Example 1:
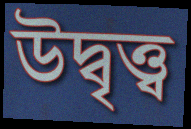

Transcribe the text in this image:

উদ্বৃত্ত্ব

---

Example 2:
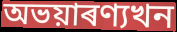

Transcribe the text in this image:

অভয়াৰণ্যখন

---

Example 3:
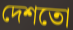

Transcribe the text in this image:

দেশতো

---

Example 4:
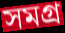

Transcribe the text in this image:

সমগ্ৰ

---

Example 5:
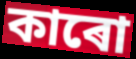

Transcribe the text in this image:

কাৰো